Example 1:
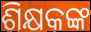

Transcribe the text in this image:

ଶିକ୍ଷକଙ୍କ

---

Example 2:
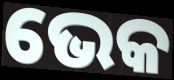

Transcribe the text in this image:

ଭେକ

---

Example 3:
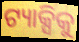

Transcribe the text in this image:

ଟ୍ୟାକ୍ସିକୁ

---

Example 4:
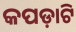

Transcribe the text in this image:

କପଡ଼ାଟି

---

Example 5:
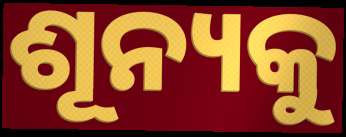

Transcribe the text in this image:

ଶୂନ୍ୟକୁ